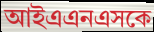
আইএএনএসকে